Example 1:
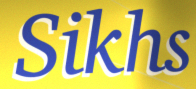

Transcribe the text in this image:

Sikhs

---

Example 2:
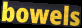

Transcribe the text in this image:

bowels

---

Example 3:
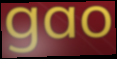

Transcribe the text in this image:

gao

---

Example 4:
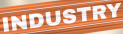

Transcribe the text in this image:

INDUSTRY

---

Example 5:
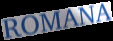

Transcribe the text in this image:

ROMANA